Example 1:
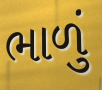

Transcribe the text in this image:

ભાળું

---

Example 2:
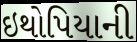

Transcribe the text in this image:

ઇથોપિયાની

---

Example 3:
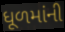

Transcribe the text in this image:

ધૂળમાંની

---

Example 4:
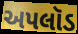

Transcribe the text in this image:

અપલૉડ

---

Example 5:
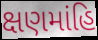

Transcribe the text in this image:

ક્ષણમાંહિ